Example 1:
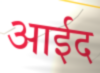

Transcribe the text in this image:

आईद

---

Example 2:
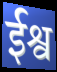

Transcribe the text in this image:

ईश्व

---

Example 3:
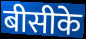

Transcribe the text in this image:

बीसीके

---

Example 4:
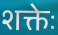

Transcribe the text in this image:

शक्तेः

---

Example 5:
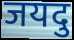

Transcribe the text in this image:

जयदु